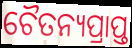
ଚୈତନ୍ୟପ୍ରାପ୍ତ